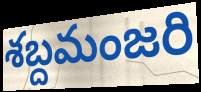
శబ్దమంజరి